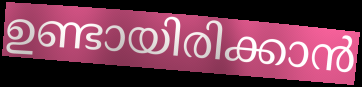
ഉണ്ടായിരിക്കാൻ